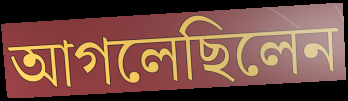
আগলেছিলেন